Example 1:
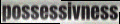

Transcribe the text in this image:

possessivness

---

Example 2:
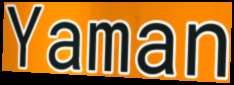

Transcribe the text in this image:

Yaman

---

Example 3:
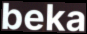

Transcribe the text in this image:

beka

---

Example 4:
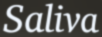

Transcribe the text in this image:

Saliva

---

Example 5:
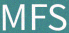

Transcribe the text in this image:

MFS